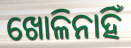
ଖୋଳିନାହିଁ